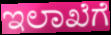
ಇಲಾಖೆಗೆ